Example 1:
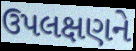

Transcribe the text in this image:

ઉપલક્ષણને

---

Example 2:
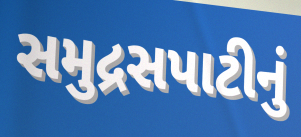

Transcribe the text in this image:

સમુદ્રસપાટીનું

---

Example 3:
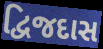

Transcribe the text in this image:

દ્વિજદાસ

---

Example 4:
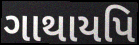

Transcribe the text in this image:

ગાથાયપિ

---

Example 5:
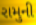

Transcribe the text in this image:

રામુની